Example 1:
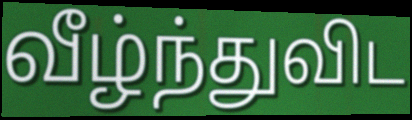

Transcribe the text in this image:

வீழ்ந்துவிட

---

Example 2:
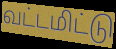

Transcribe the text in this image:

வட்டமிட்டு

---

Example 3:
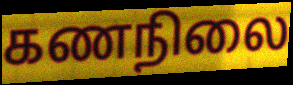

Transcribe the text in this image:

கணநிலை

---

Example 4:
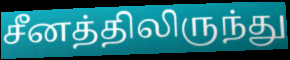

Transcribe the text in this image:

சீனத்திலிருந்து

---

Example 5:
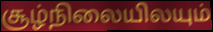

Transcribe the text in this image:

சூழ்நிலையிலயும்